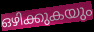
ഒഴിക്കുകയും